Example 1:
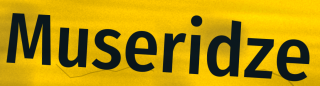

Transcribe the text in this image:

Museridze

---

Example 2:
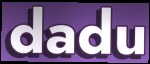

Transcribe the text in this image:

dadu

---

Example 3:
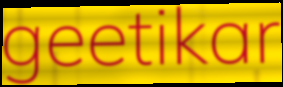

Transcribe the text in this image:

geetikar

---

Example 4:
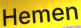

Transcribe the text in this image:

Hemen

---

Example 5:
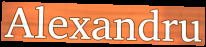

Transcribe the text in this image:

Alexandru